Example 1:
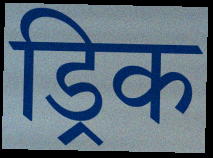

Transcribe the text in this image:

ड्रिक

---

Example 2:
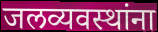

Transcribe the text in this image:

जलव्यवस्थांना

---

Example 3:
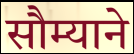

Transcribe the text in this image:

सौम्याने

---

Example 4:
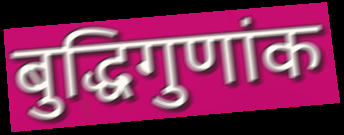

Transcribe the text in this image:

बुद्धिगुणांक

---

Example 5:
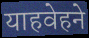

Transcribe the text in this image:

याहवेहने